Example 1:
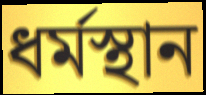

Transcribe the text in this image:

ধর্মস্থান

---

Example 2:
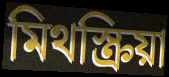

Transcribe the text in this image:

মিথস্ক্রিয়া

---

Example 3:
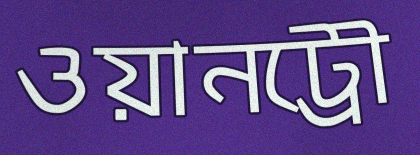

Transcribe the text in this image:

ওয়ানট্রৌ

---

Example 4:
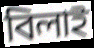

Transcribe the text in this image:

বিলাই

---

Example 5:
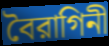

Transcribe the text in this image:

বৈরাগিনী